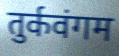
तुर्कवंगम